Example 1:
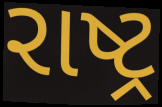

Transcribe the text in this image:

રાષ્ટ્ર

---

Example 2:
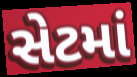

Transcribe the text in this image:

સેટમાં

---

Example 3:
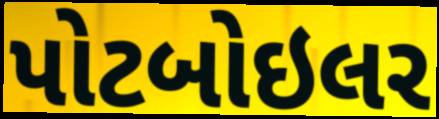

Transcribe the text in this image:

પોટબોઇલર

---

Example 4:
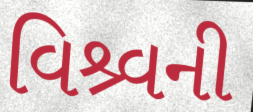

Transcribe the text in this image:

વિશ્ર્વની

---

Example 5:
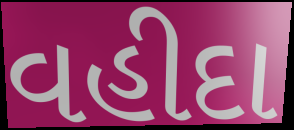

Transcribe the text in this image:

વહીદા